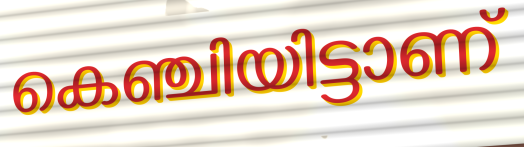
കെഞ്ചിയിട്ടാണ്